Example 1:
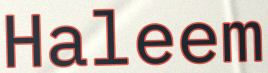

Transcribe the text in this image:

Haleem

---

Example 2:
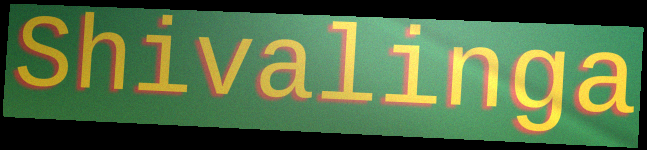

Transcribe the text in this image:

Shivalinga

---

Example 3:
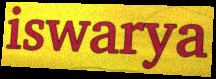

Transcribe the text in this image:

iswarya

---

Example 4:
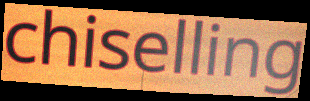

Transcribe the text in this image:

chiselling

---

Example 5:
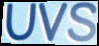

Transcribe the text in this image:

UVS